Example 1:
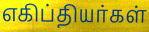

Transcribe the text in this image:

எகிப்தியர்கள்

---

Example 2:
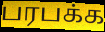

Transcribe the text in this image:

பரபக்க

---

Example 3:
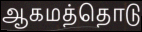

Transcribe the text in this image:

ஆகமத்தொடு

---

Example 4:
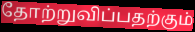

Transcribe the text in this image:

தோற்றுவிப்பதற்கும்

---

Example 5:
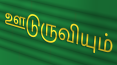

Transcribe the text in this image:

ஊடுருவியும்